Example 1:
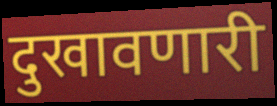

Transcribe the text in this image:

दुखावणारी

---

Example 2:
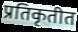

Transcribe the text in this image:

प्रतिकृतीत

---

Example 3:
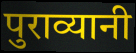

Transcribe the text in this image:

पुराव्यानी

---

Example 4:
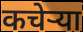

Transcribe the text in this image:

कचेऱ्या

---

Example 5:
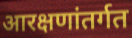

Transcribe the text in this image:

आरक्षणांतर्गत